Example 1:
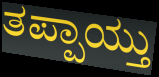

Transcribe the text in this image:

ತಪ್ಪಾಯ್ತು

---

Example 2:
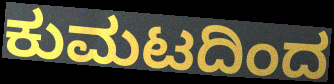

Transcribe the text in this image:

ಕುಮಟದಿಂದ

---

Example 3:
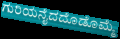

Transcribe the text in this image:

ಗುರಿಯನೈದದೊಡೊಮ್ಮೆ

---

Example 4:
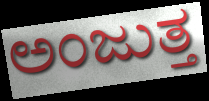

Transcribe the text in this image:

ಅಂಜುತ್ತ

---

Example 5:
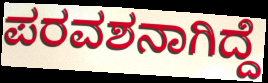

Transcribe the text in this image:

ಪರವಶನಾಗಿದ್ದೆ